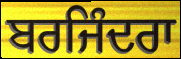
ਬਰਜਿੰਦਰਾ